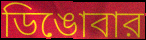
ডিঙোবার